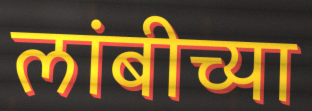
लांबीच्या